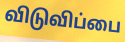
விடுவிப்பை